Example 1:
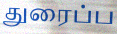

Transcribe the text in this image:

துரைப்ப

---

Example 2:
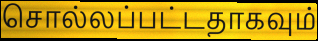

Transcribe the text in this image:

சொல்லப்பட்டதாகவும்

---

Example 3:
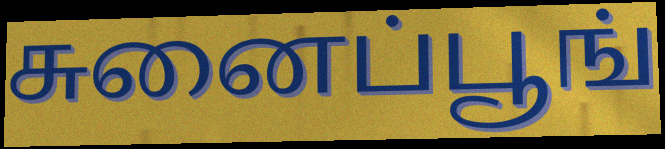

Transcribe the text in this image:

சுனைப்பூங்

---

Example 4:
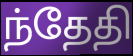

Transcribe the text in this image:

ந்தேதி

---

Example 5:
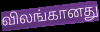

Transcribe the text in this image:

விலங்கானது